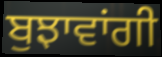
ਬੁਝਾਵਾਂਗੀ